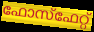
ഫോസ്ഫേറ്റ്